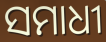
ସମାଧୀ